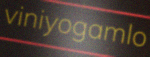
viniyogamlo